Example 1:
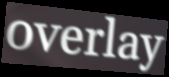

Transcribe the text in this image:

overlay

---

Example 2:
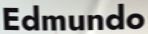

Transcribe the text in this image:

Edmundo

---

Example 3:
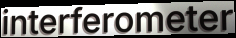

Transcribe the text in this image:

interferometer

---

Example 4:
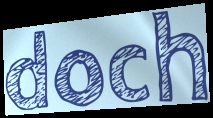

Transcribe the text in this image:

doch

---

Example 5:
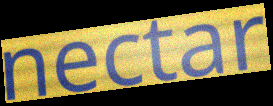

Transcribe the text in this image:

nectar